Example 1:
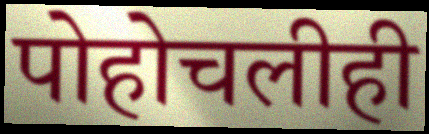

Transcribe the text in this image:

पोहोचलीही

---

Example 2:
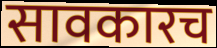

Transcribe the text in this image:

सावकारच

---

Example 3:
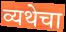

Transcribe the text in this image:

व्यथेचा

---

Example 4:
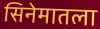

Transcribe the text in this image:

सिनेमातला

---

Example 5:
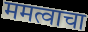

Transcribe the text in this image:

ममत्वाचा